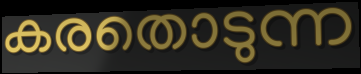
കരതൊടുന്ന